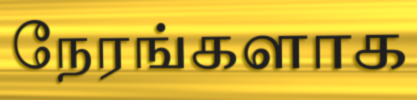
நேரங்களாக